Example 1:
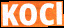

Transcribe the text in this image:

KOCl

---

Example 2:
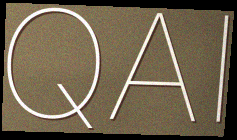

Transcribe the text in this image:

QAI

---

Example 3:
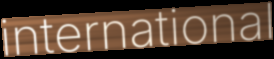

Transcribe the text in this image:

international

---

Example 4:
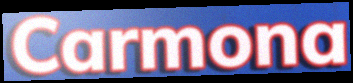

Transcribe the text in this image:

Carmona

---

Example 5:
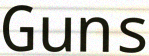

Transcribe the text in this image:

Guns